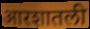
आरशातली